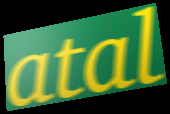
atal